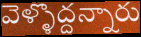
వెళ్ళొద్దన్నారు